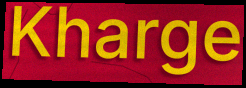
Kharge